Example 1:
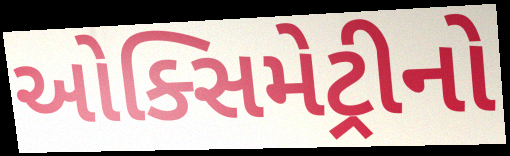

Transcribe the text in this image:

ઓક્સિમેટ્રીનો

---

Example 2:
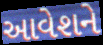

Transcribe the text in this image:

આવેશને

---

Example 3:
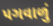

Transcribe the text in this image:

પગવાળું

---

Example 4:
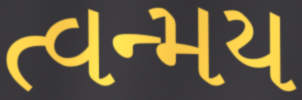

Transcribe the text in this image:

ત્વન્મય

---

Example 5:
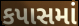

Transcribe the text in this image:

કપાસમાં